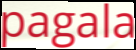
pagala